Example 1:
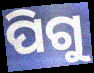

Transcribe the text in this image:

ପିଗୁ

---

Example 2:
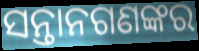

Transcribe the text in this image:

ସନ୍ତାନଗଣଙ୍କର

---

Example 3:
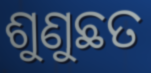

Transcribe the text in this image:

ଶୁଣୁଛତ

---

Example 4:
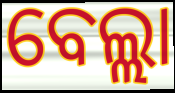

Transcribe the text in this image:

ବେଲ୍ଲା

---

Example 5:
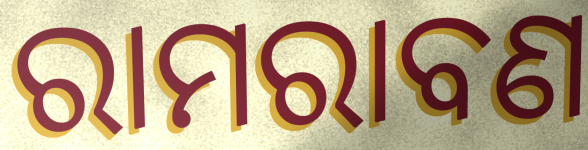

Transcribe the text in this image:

ରାମରାବଣ